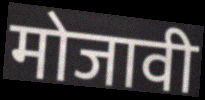
मोजावी